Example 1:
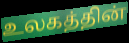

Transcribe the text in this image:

உலகத்தின்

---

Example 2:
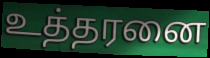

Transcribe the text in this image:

உத்தரனை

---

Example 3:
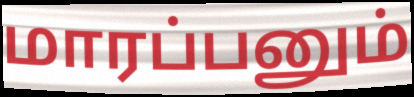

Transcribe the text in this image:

மாரப்பனும்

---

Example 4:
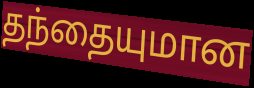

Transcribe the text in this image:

தந்தையுமான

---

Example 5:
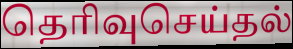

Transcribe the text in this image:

தெரிவுசெய்தல்